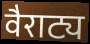
वैराट्य